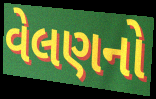
વેલણનો